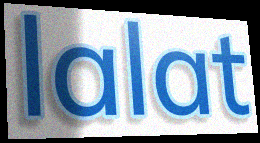
lalat